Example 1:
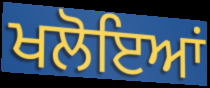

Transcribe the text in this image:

ਖਲੋਇਆਂ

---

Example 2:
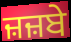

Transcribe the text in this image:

ਜ਼ਜ਼ਬੇ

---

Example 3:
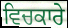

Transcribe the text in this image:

ਵਿਚਕਾਰੇ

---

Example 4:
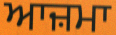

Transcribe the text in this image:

ਆਜ਼ਮਾ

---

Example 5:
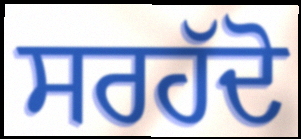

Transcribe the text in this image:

ਸਰਹੱਦੋ